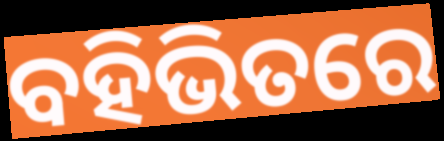
ବହିଭିତରେ